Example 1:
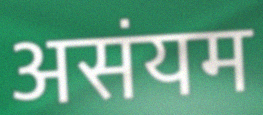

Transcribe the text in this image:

असंयम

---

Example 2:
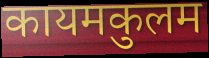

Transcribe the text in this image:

कायमकुलम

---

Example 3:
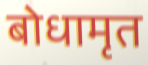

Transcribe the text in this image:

बोधामृत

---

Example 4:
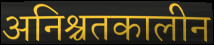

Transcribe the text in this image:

अनिश्चतकालीन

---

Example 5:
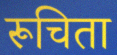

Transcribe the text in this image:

रूचिता